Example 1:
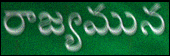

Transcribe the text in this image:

రాజ్యమున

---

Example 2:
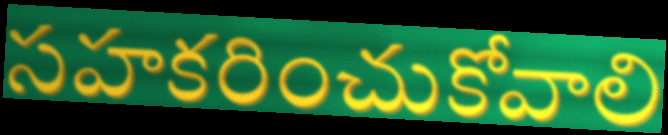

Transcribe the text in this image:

సహకరించుకోవాలి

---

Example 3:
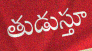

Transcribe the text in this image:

తుడుస్తూ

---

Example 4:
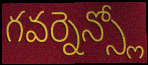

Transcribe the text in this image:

గవర్నెన్స్లో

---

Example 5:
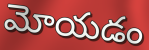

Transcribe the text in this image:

మోయడం